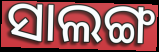
ସାଲଙ୍ଗ